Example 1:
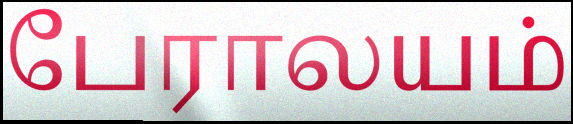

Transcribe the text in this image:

பேராலயம்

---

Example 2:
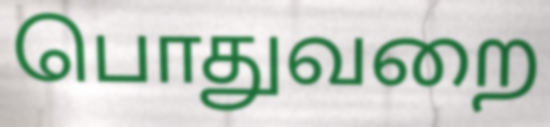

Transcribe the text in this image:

பொதுவறை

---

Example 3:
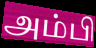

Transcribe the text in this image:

அம்பி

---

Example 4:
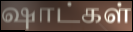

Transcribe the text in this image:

ஷாட்கள்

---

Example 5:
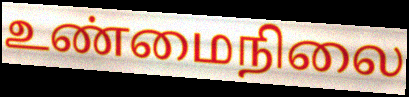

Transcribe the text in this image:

உண்மைநிலை